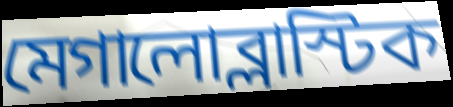
মেগালোব্লাস্টিক